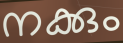
നക്കും